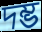
দম্ভ